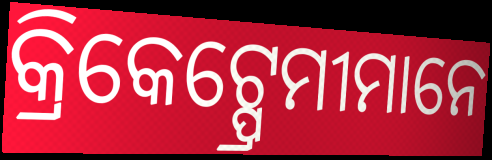
କ୍ରିକେଟ୍ପ୍ରେମୀମାନେ